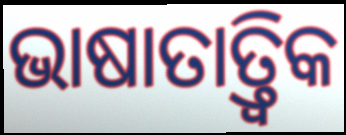
ଭାଷାତାତ୍ତ୍ୱିକ